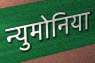
न्युमोनिया